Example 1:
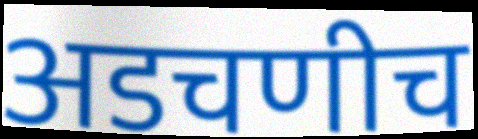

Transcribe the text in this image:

अडचणीच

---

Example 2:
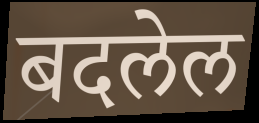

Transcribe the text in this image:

बदलेल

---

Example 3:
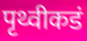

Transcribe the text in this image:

पृथ्वीकडं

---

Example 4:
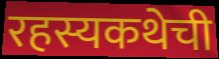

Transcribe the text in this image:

रहस्यकथेची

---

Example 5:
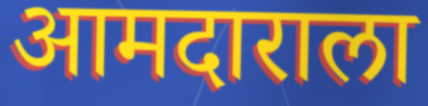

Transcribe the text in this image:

आमदाराला